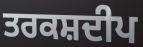
ਤਰਕਸ਼ਦੀਪ